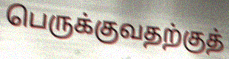
பெருக்குவதற்குத்